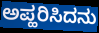
ಅಪ್ಹರಿಸಿದನು